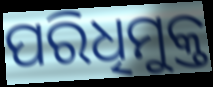
ପରିଧିମୁକ୍ତ